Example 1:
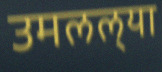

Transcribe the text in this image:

उमलल्या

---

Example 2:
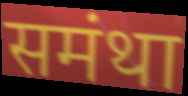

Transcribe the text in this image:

समंथा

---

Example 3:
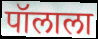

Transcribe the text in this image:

पॉलाला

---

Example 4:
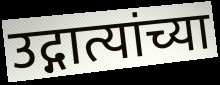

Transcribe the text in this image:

उद्गात्यांच्या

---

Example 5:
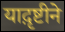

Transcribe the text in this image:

याद़ृष्टीने